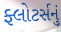
ફ્લોટર્સનું